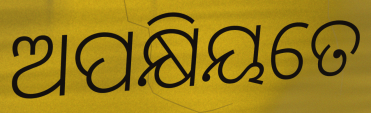
ଅପକ୍ଷିୟତେ